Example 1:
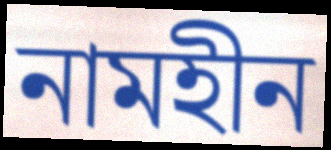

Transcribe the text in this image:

নামহীন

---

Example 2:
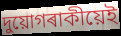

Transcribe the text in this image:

দুয়োগৰাকীয়েই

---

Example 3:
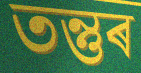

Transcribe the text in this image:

তন্তুৰ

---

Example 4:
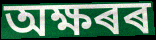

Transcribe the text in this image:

অক্ষৰৰ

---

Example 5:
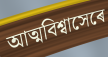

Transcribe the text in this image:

আত্মবিশ্বাসেৰে